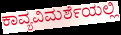
ಕಾವ್ಯವಿಮರ್ಶೆಯಲ್ಲಿ